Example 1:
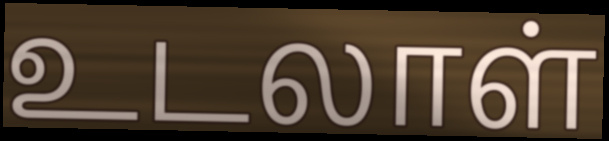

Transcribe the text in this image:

உடலாள்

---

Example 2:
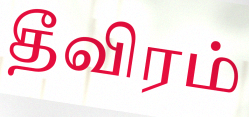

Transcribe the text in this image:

தீவிரம்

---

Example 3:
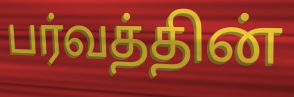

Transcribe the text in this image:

பர்வத்தின்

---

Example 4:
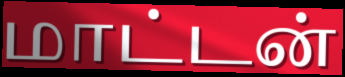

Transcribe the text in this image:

மாட்டன்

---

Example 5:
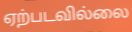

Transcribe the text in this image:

ஏற்படவில்லை